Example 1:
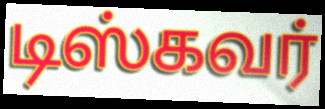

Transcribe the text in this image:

டிஸ்கவர்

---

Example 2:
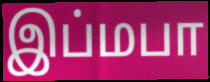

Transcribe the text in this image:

இப்மபா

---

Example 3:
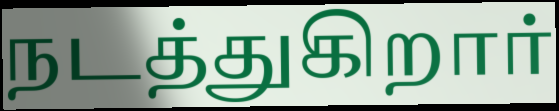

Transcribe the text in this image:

நடத்துகிறார்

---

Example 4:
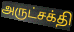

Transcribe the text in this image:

அருட்சக்தி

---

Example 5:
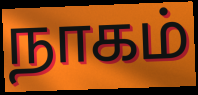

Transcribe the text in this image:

நாகம்